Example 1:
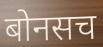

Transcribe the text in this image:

बोनसच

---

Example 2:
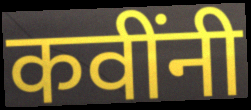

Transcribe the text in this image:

कवींनी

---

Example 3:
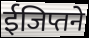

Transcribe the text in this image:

ईजिप्तने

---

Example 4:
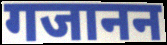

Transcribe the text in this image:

गजानन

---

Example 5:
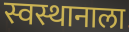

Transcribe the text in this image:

स्वस्थानाला